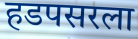
हडपसरला